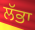
ਲੱਭਾ